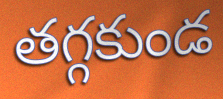
తగ్గకుండ